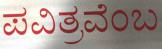
ಪವಿತ್ರವೆಂಬ